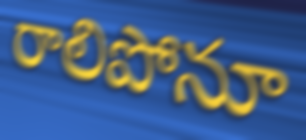
రాలిపోనూ